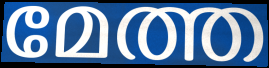
മേത്ത